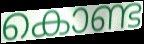
കൊണ്ട